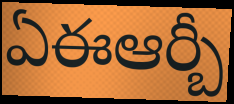
ఏఈఆర్బీ